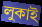
লুকাই